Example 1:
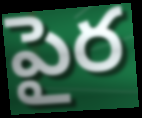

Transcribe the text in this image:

పైర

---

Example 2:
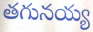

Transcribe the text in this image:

తగునయ్య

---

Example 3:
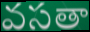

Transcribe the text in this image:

వసతా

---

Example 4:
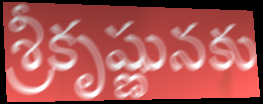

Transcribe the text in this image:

శ్రీకృష్ణునకు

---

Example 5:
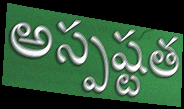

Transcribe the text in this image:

అస్పష్టత